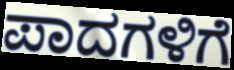
ಪಾದಗಳಿಗೆ